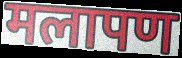
मलापण